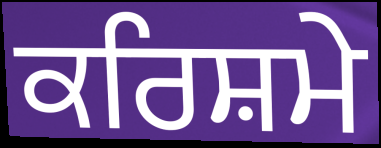
ਕਰਿਸ਼ਮੇ